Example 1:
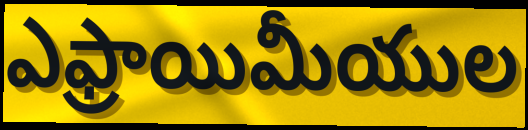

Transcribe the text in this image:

ఎఫ్రాయిమీయుల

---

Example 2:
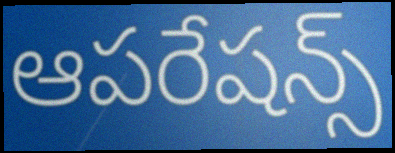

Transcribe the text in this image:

ఆపరేషన్స్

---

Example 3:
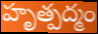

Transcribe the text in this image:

హృత్పద్మం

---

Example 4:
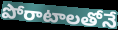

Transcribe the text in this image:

పోరాటాలతోనే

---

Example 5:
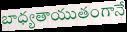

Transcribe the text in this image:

బాధ్యతాయుతంగానే